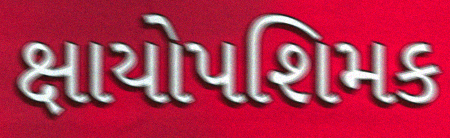
ક્ષાયોપશિમક